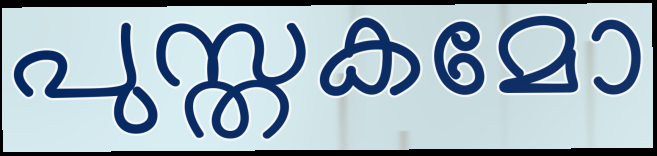
പുസ്തകമോ